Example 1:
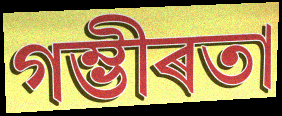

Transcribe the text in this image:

গম্ভীৰতা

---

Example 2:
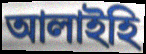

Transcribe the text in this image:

আলাইহি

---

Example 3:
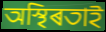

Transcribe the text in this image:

অস্থিৰতাই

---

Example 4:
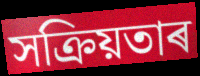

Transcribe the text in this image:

সক্ৰিয়তাৰ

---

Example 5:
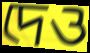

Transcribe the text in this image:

দেও